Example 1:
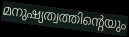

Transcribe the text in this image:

മനുഷ്യത്വത്തിന്റെയും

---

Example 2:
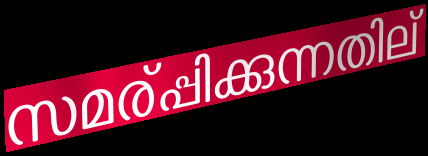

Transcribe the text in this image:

സമര്പ്പിക്കുന്നതില്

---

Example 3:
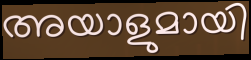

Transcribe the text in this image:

അയാളുമായി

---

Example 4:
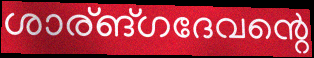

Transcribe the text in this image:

ശാര്ങ്ഗദേവന്റെ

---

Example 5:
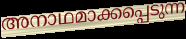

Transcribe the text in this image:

അനാഥമാക്കപ്പെടുന്ന